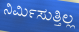
ನಿರ್ಮಿಸುತ್ತಿಲ್ಲ